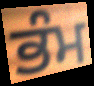
ਭੰਮ